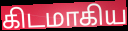
கிடமாகிய